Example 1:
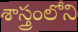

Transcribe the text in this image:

శాస్త్రంలోని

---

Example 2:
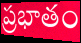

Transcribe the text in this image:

ప్రభాతం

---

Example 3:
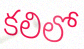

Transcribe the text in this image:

కలిలో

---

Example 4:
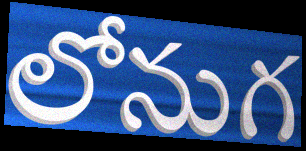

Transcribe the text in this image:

లోనుగ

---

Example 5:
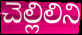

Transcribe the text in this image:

చెల్లిలిని